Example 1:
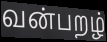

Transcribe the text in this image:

வன்பறழ்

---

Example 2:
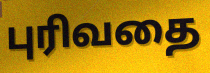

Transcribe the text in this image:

புரிவதை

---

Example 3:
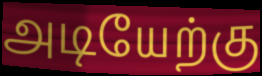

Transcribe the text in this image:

அடியேற்கு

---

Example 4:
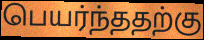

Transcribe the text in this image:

பெயர்ந்ததற்கு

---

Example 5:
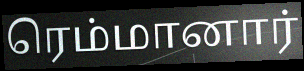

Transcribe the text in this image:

ரெம்மானார்